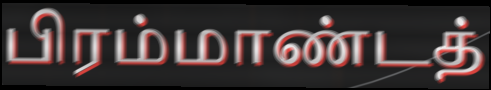
பிரம்மாண்டத்